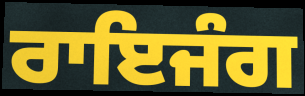
ਰਾਇਜੰਗ